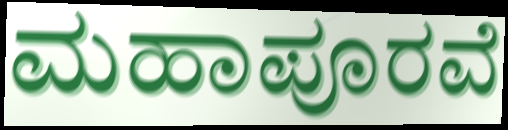
ಮಹಾಪೂರವೆ